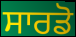
ਸਾਰਡੋ